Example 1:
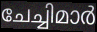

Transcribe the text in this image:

ചേച്ചിമാർ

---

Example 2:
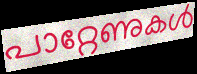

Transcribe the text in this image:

പാറ്റേണുകൾ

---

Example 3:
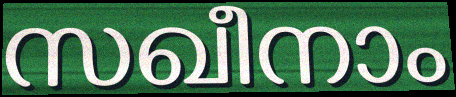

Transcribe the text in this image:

സഖീനാം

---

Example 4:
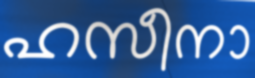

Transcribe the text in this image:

ഹസീനാ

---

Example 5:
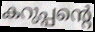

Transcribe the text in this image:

കറുപ്പന്റെ